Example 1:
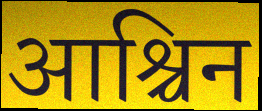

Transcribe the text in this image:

आश्चिन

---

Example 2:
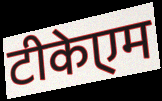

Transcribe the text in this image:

टीकेएम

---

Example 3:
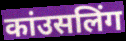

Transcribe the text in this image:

कांउसलिंग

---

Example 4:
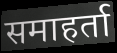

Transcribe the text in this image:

समाहर्ता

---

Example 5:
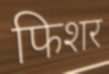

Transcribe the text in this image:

फिशर